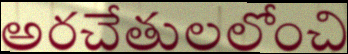
అరచేతులలోంచి